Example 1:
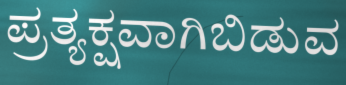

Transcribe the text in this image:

ಪ್ರತ್ಯಕ್ಷವಾಗಿಬಿಡುವ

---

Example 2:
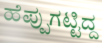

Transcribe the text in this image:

ಹೆಪ್ಪುಗಟ್ಟಿದ್ದ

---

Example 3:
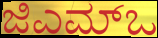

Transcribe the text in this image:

ಜಿಎಮ್ಒ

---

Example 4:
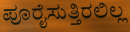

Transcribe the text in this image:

ಪೂರೈಸುತ್ತಿರಲಿಲ್ಲ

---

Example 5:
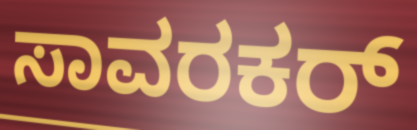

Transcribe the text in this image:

ಸಾವರಕರ್